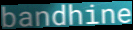
bandhine